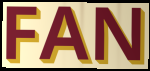
FAN